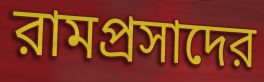
রামপ্রসাদের